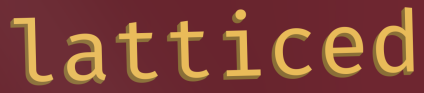
latticed